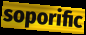
soporific